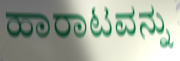
ಹಾರಾಟವನ್ನು